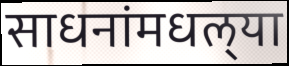
साधनांमधल्या